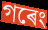
গৰেং